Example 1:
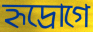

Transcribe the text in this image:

হৃদ্রোগে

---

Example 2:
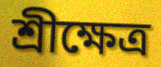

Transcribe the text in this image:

শ্রীক্ষেত্র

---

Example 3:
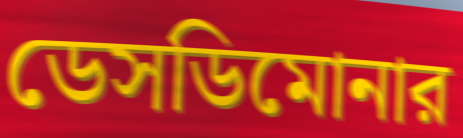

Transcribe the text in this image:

ডেসডিমোনার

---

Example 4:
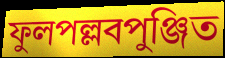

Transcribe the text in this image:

ফুলপল্লবপুঞ্জিত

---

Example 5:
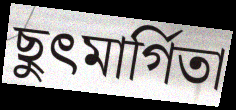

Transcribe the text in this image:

ছুৎমার্গিতা